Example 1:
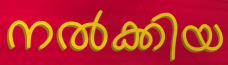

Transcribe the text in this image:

നൽക്കിയ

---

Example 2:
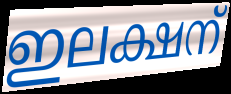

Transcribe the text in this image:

ഇലക്ഷന്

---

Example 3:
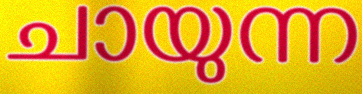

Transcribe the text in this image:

ചായുന്ന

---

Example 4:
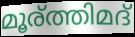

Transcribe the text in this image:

മൂര്ത്തിമദ്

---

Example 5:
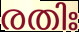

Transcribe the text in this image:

രതിഃ